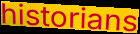
historians